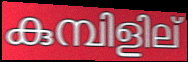
കുമ്പിളില്